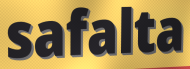
safalta